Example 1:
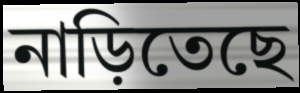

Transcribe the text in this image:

নাড়িতেছে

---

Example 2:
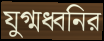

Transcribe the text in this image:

যুগ্মধ্বনির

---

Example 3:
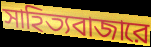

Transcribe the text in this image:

সাহিত্যবাজারে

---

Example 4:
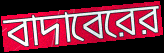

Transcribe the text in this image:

বাদাবেরের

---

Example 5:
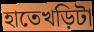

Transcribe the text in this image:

হাতেখড়িটা